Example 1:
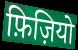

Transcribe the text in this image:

फ़िज़ियो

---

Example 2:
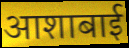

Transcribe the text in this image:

आशाबाई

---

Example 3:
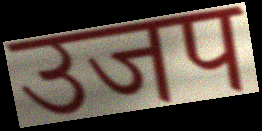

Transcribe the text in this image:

उजप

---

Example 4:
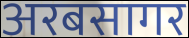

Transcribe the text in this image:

अरबसागर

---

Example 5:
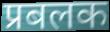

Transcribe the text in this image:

प्रबलक